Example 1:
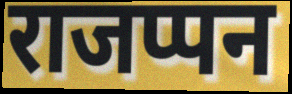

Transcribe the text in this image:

राजप्पन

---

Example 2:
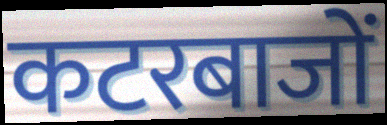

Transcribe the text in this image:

कटरबाजों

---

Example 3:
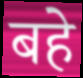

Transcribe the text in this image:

बहे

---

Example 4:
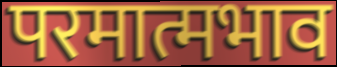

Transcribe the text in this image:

परमात्मभाव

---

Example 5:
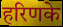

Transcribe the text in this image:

हरिणके